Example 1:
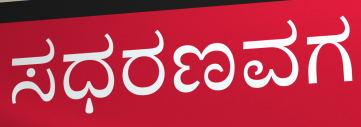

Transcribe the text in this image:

ಸಧರಣವಗ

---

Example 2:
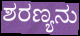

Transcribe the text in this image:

ಶರಣ್ಯನು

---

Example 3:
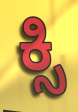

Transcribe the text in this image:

ಕ್ಸಿ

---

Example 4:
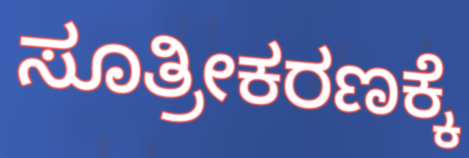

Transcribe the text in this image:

ಸೂತ್ರೀಕರಣಕ್ಕೆ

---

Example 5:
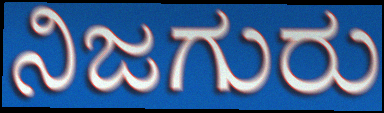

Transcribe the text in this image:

ನಿಜಗುರು